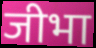
जीभा